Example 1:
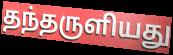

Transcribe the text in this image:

தந்தருளியது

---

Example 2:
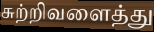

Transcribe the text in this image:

சுற்றிவளைத்து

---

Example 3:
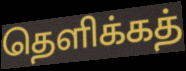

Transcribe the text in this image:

தெளிக்கத்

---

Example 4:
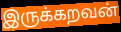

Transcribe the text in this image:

இருக்கறவன்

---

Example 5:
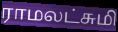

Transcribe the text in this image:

ராமலட்சுமி